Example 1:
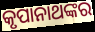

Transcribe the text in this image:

କୃପାନାଥଙ୍କର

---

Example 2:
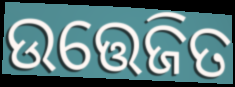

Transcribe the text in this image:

ଉତ୍ତେଜିତ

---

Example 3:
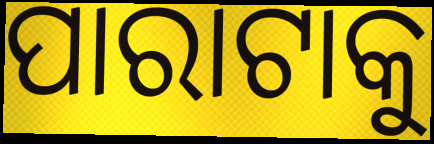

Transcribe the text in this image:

ପାରାଟାକୁ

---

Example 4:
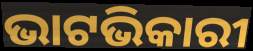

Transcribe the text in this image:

ଭାଟଭିକାରୀ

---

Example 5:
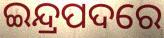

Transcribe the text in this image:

ଇନ୍ଦ୍ରପଦରେ